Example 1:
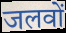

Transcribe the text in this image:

जलवों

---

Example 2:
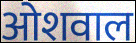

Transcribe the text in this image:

ओशवाल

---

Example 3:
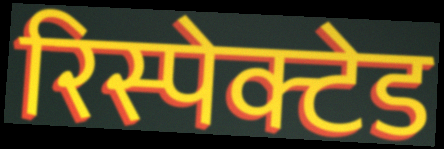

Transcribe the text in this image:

रिस्पेक्टेड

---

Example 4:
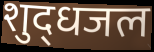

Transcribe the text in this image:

शुद्धजल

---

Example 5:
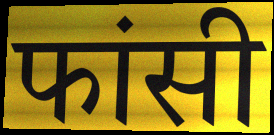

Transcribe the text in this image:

फांसी